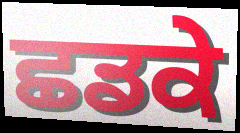
ਛਡਕੇ